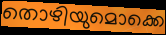
തൊഴിയുമൊക്കെ